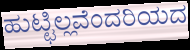
ಹುಟ್ಟಿಲ್ಲವೆಂದರಿಯದ